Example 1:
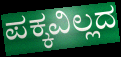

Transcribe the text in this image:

ಪಕ್ಕವಿಲ್ಲದ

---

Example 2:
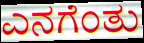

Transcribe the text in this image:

ಎನಗೆಂತು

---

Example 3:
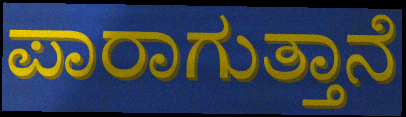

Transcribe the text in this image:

ಪಾರಾಗುತ್ತಾನೆ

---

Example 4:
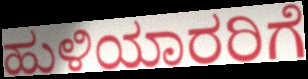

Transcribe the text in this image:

ಹುಳಿಯಾರರಿಗೆ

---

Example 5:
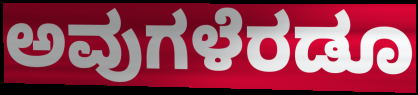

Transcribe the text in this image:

ಅವುಗಳೆರಡೂ